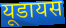
यूडायस